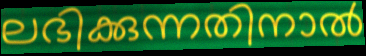
ലഭിക്കുന്നതിനാൽ